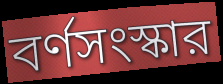
বর্ণসংস্কার